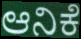
ಆನಿಕೆ